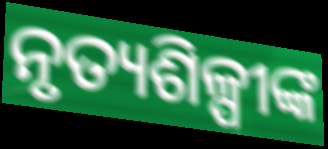
ନୃତ୍ୟଶିଳ୍ପୀଙ୍କ